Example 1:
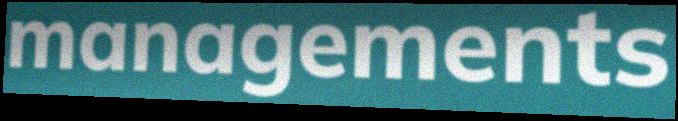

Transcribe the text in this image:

managements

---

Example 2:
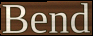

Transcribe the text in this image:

Bend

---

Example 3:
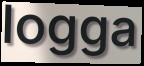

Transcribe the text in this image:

logga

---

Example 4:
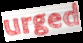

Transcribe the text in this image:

urged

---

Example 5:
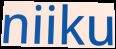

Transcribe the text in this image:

niiku